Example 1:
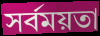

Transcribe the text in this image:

সর্বময়তা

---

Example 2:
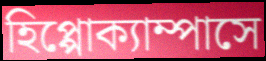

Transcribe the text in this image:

হিপ্পোক্যাম্পাসে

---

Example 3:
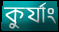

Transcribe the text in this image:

কুর্যাং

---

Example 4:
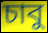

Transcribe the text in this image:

চাবু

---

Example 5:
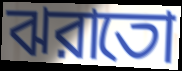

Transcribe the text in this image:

ঝরাতো